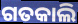
ଗତକାଲି